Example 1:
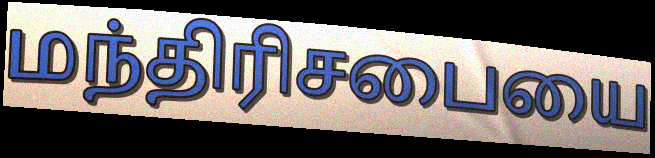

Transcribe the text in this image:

மந்திரிசபையை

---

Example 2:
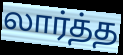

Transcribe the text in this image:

லார்த்த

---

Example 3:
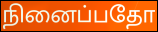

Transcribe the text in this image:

நினைப்பதோ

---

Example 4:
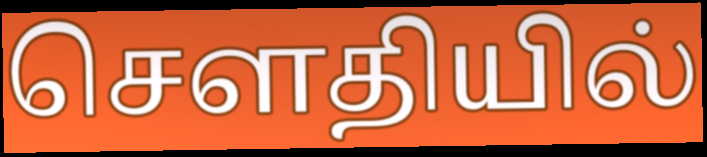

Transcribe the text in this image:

செளதியில்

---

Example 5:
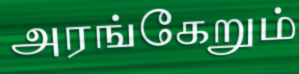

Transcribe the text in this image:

அரங்கேறும்